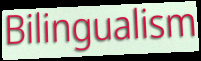
Bilingualism